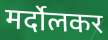
मर्दोलकर